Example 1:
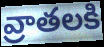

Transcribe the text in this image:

వ్రాతలకి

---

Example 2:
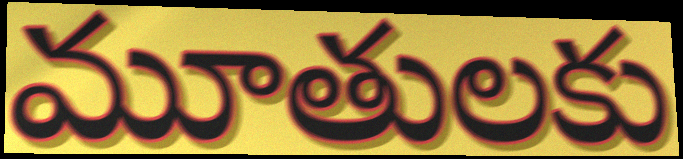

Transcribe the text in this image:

మూతులకు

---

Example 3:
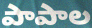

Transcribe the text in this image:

పాపాల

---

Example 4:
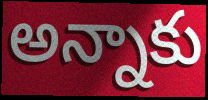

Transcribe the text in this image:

అన్నాకు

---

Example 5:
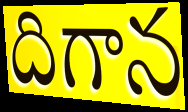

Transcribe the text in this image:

దిగాన